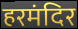
हरमंदिर